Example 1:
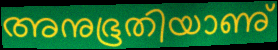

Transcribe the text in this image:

അനുഭൂതിയാണു്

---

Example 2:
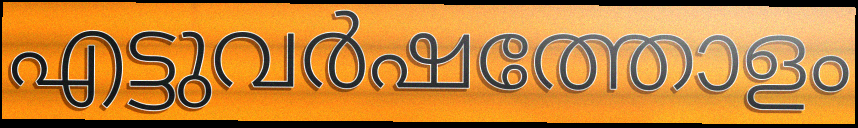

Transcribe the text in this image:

എട്ടുവർഷത്തോളം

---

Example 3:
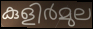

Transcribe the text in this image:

കുളിർമുല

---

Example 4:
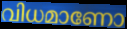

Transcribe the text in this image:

വിധമാണോ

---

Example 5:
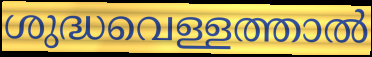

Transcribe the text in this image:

ശുദ്ധവെള്ളത്താൽ